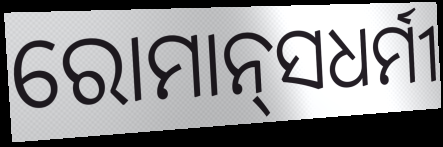
ରୋମାନ୍‍ସଧର୍ମୀ